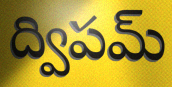
ద్విపమ్